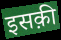
इसक़ी